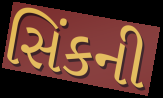
સિંકની